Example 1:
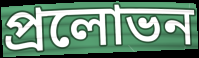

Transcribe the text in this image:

প্রলোভন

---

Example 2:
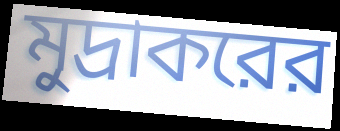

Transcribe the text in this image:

মুদ্রাকরের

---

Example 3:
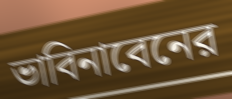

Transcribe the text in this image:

ভাবিনাবেনের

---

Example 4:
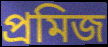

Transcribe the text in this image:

প্রমিজ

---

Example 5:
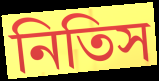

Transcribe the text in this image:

নিতিস